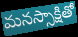
మనస్సాక్షితో